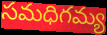
సమధిగమ్య